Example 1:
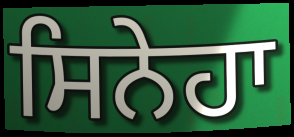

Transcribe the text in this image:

ਸਿਨੇਹਾ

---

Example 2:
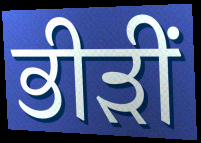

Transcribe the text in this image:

ਭੀੜੀਂ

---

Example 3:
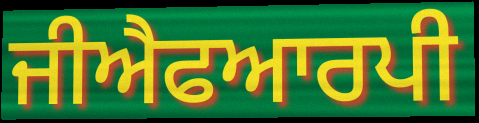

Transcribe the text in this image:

ਜੀਐਫਆਰਪੀ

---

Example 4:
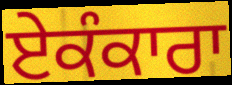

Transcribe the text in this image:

ਏਕੰਕਾਰਾ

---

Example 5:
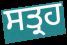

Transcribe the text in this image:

ਸਤ੍ਰਹ